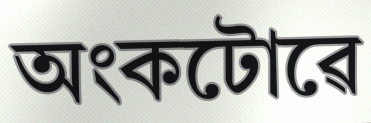
অংকটোৱে